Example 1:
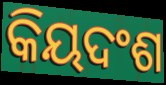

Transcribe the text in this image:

କିୟଦଂଶ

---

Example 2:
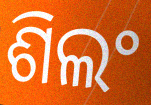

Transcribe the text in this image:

ଶିଲଂ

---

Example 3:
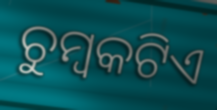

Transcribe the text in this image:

ଚୁମ୍ବକଟିଏ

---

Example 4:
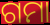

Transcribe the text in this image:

ଗମା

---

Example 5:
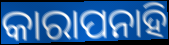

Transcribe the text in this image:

କାରାପନାହି